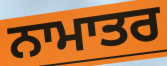
ਨਾਮਾਤਰ